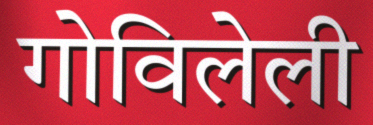
गोविलेली